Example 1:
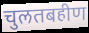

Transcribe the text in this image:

चुलतबहीण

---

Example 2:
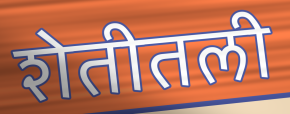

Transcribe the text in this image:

शेतीतली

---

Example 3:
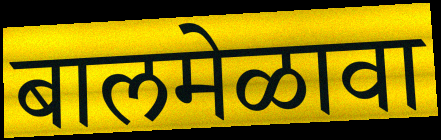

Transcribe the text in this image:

बालमेळावा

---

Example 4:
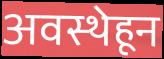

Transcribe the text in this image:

अवस्थेहून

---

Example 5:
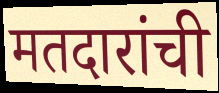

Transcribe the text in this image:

मतदारांची